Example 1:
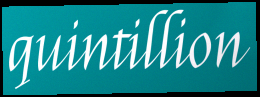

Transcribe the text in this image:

quintillion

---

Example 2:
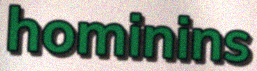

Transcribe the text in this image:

hominins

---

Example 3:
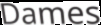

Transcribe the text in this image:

Dames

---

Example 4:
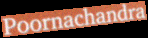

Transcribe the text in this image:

Poornachandra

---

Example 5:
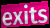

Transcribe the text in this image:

exits